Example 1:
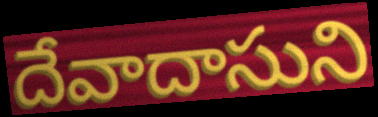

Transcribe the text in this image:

దేవాదాసుని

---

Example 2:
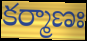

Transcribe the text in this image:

కర్మాణః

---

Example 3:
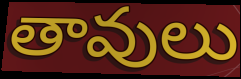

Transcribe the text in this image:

తావులు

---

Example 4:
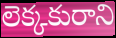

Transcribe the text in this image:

లెక్కకురాని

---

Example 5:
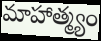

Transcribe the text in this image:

మాహాత్మ్యం